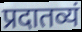
प्रदातव्यं